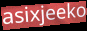
asixjeeko